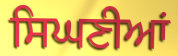
ਸਿਘਣੀਆਂ